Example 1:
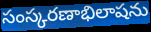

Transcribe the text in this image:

సంస్కరణాభిలాషను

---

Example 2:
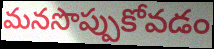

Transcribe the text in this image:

మనసొప్పుకోవడం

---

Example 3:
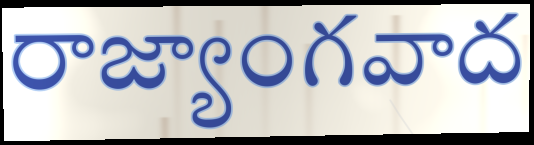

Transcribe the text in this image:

రాజ్యాంగవాద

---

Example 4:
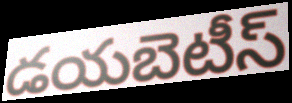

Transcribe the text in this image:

డయబెటీస్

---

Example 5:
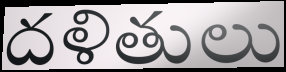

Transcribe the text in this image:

దళితులు